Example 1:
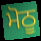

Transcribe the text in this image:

ਮੋਠੂ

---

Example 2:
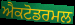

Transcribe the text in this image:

ਐਕਟੋਡਰਮਲ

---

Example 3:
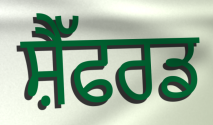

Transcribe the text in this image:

ਸ਼ੈੱਫਰਡ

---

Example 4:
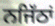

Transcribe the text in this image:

ਨਜਿੱਠਾਂ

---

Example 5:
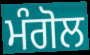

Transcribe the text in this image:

ਮੰਗੋਲ